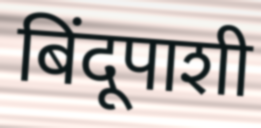
बिंदूपाशी